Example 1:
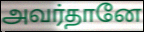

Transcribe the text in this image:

அவர்தானே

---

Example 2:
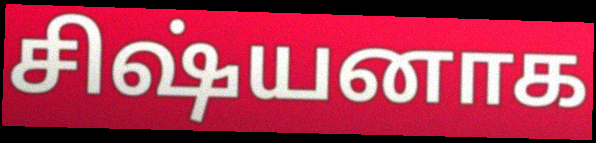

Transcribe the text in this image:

சிஷ்யனாக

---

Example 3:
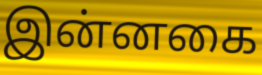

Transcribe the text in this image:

இன்னகை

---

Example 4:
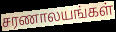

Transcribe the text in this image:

சரணாலயங்கள்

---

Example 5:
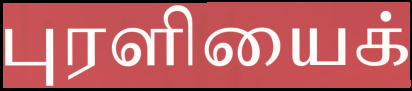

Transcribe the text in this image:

புரளியைக்